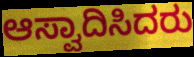
ಆಸ್ವಾದಿಸಿದರು